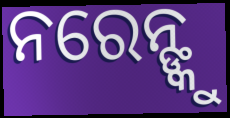
ନରେନ୍ଙ୍କୁ